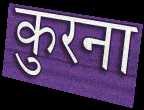
कुरना